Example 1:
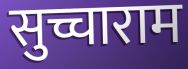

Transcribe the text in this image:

सुच्चाराम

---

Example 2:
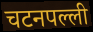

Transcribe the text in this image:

चटनपल्ली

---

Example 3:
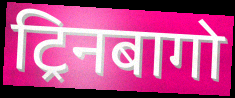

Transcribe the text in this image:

ट्रिनबागो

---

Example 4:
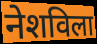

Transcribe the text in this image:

नेशविला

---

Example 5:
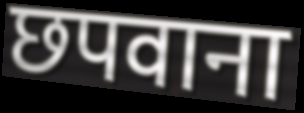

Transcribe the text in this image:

छपवाना